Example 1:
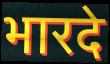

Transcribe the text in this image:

भारदे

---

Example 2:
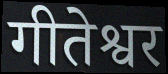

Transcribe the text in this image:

गीतेश्वर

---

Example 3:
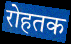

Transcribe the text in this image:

रोहतक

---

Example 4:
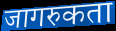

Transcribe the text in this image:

जागरुकता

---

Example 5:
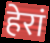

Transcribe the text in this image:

हेरां